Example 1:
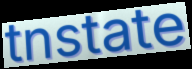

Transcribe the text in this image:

tnstate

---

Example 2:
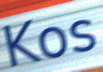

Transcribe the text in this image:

Kos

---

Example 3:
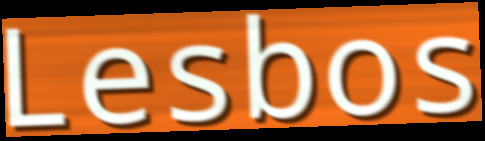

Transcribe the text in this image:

Lesbos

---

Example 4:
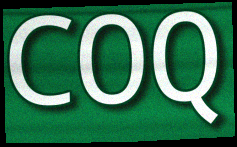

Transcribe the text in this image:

COQ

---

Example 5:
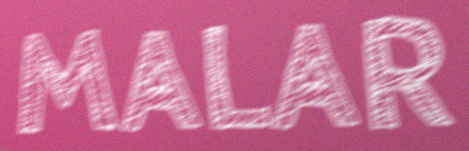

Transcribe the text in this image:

MALAR